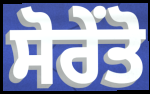
ਸੋਰੇਂਤੋ